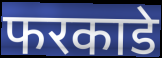
फरकाडे